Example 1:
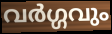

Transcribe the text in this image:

വർഗ്ഗവും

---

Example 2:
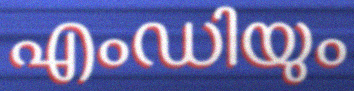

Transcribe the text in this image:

എംഡിയും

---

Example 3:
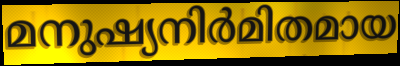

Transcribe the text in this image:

മനുഷ്യനിർമിതമായ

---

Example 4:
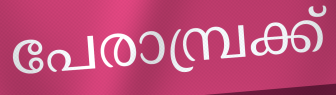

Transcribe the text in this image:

പേരാമ്പ്രക്ക്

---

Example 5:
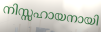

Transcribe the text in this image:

നിസ്സഹായനായി